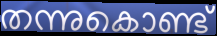
തന്നുകൊണ്ട്